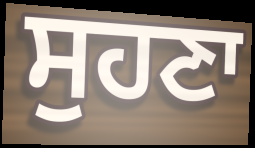
ਸੁਹਣਾ